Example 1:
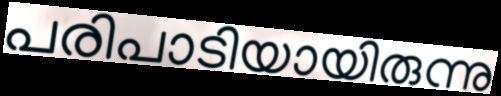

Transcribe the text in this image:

പരിപാടിയായിരുന്നു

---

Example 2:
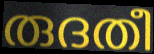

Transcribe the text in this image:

രുദതീ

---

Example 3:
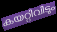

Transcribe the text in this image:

കയറ്റിവിടും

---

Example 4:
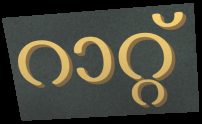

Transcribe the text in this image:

റാറ്റ്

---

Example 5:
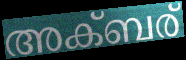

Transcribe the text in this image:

അക്ബര്